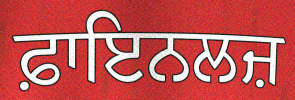
ਫ਼ਾਇਨਲਜ਼